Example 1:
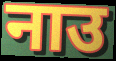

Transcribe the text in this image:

नाउ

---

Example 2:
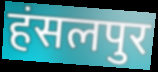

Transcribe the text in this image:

हंसलपुर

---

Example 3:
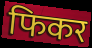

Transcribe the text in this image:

फिकर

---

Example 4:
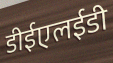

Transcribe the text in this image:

डीईएलईडी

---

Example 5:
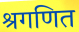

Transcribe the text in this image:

श्रगणित